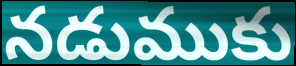
నడుముకు